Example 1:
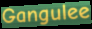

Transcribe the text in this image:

Gangulee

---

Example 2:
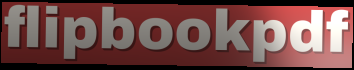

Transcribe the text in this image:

flipbookpdf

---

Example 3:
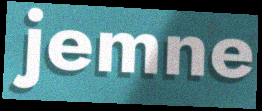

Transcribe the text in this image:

jemne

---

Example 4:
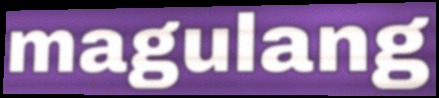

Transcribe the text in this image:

magulang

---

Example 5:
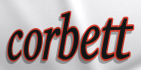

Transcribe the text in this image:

corbett